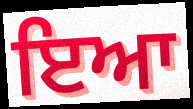
ਇਆ